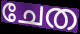
ചേത